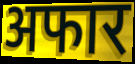
अफार